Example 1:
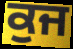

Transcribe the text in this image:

ਕੁਜ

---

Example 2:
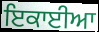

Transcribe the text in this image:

ਇਕਾਈਆ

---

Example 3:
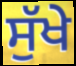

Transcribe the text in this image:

ਸੁੱਖੇ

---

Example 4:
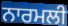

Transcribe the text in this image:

ਨਾਰਮਲੀ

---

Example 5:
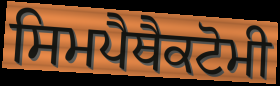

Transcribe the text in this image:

ਸਿਮਪੈਥੈਕਟੋਮੀ